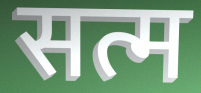
सत्म